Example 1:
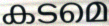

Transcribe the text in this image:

കടമെ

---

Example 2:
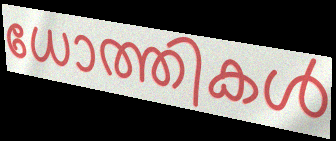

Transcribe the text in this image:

ധോത്തികൾ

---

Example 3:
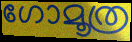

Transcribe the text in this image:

ഗോമൂത്ര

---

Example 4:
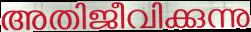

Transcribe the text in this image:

അതിജീവിക്കുന്നു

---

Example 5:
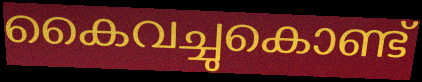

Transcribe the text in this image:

കൈവച്ചുകൊണ്ട്